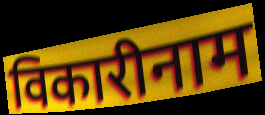
विकारीनाम